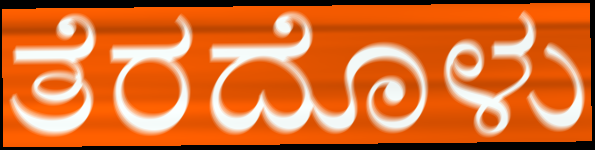
ತೆರದೊಳು